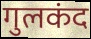
गुलकंद